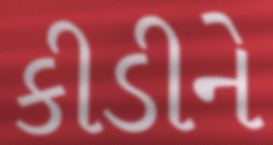
કીડીને